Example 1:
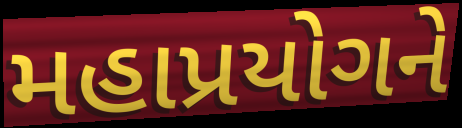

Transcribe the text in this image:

મહાપ્રયોગને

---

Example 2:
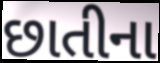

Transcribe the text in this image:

છાતીના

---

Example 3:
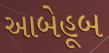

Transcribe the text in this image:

આબેહૂબ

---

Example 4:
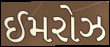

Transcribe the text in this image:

ઈમરોઝ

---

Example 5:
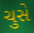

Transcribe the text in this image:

ચુસે